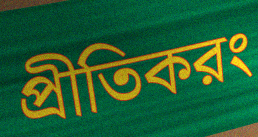
প্রীতিকরং